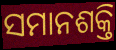
ସମାନଶକ୍ତି